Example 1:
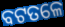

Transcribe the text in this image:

ବଟତଳେ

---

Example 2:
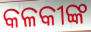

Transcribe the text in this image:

କଳକୀଙ୍କ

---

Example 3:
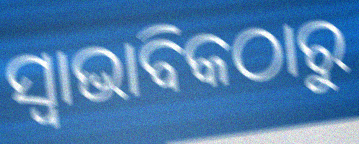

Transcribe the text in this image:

ସ୍ୱାଭାବିକଠାରୁ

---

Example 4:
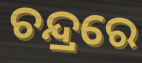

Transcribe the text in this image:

ଚନ୍ଦ୍ରରେ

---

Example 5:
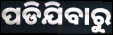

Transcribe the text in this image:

ପଡିଯିବାରୁ